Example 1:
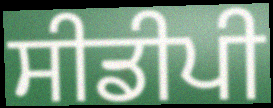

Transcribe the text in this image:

ਸੀਡੀਪੀ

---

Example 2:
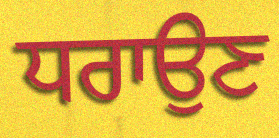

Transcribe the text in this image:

ਧਰਾਉਣ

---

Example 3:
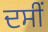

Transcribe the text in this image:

ਦਸੀਂ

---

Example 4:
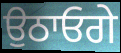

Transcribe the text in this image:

ਉਠਾਓਗੇ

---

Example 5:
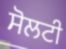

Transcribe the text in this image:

ਸੋਲਟੀ